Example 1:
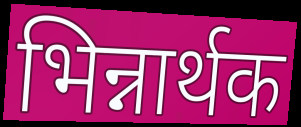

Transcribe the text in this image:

भिन्नार्थक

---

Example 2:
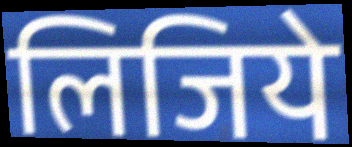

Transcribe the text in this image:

लिजिये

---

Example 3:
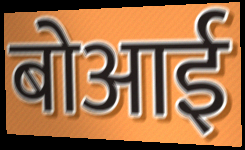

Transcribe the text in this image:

बोआई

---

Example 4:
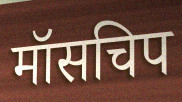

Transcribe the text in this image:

मॉसचिप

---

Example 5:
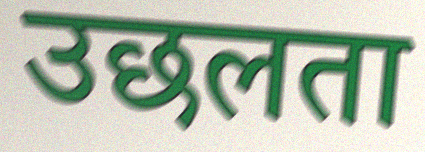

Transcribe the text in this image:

उछलता